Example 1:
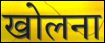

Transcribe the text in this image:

खोलना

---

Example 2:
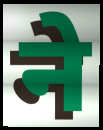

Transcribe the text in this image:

ने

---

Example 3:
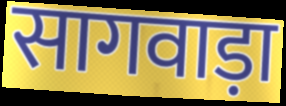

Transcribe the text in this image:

सागवाड़ा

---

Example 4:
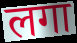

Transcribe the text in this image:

लगा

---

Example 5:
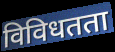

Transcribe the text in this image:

विविधतता